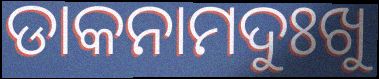
ଡାକନାମଦୁଃଖୁ